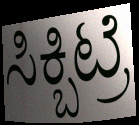
ಸಿಕ್ಬಿಟ್ರೆ